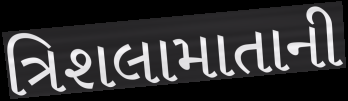
ત્રિશલામાતાની